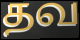
தவ